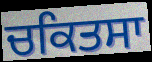
ਚਕਿਤਸਾ